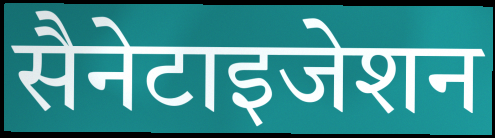
सैनेटाइजेशन